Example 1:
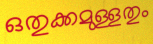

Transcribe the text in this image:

ഒതുക്കമുള്ളതും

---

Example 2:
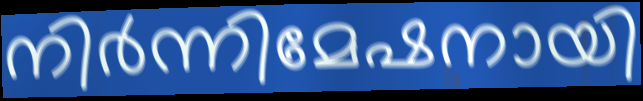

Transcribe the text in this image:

നിർന്നിമേഷനായി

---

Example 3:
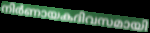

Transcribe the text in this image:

നിർണായകദിവസമായി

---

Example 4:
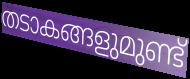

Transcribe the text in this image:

തടാകങ്ങളുമുണ്ട്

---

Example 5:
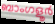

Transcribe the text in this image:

ബാംഗളൂർ